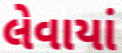
લેવાયાં